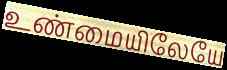
உண்மையிலேயே